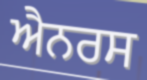
ਐਨਰਸ